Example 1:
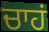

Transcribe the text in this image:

ਚਾਹਂ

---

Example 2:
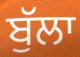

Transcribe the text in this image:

ਬੁੱਲਾ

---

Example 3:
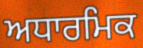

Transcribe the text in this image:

ਅਧਾਰਮਿਕ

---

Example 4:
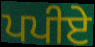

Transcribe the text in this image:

ਪਪੀਏ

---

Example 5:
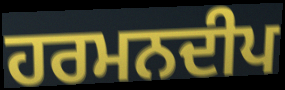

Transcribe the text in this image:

ਹਰਮਨਦੀਪ